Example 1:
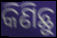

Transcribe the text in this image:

କିଣିଛୁ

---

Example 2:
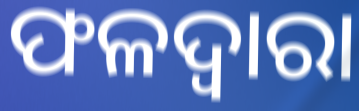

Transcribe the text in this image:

ଫଳଦ୍ୱାରା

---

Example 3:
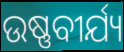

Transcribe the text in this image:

ଉଷ୍ଣବୀର୍ଯ୍ୟ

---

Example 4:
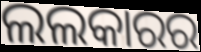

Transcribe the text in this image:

ଲଲକାରର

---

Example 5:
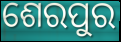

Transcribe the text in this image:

ଶେରପୁର